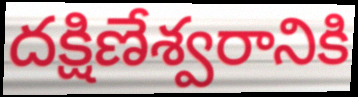
దక్షిణేశ్వరానికి